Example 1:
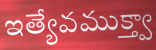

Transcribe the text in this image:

ఇత్యేవముక్త్వా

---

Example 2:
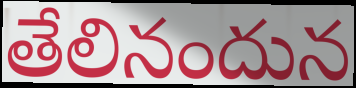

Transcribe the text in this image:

తేలినందున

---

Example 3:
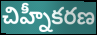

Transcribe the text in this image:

చిహ్నీకరణ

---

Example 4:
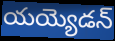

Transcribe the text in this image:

యయ్యెడన్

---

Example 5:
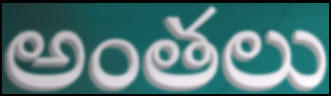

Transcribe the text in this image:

అంతలు